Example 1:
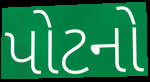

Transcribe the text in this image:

પોટનો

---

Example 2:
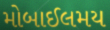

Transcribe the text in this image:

મોબાઈલમય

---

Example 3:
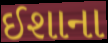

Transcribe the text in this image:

ઈશાના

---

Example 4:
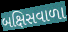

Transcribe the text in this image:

બક્ષિસવાળા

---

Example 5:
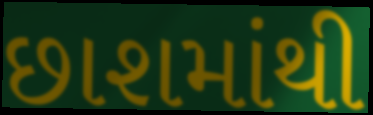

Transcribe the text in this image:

છાશમાંથી